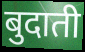
बुदाती